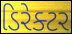
ડિરેક્ટર